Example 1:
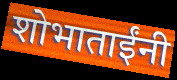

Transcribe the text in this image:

शोभाताईंनी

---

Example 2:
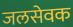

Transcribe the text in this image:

जलसेवक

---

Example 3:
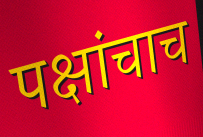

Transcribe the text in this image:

पक्षांचाच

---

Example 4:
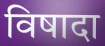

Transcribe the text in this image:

विषादा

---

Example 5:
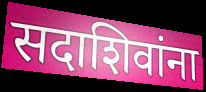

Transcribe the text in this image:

सदाशिवांना